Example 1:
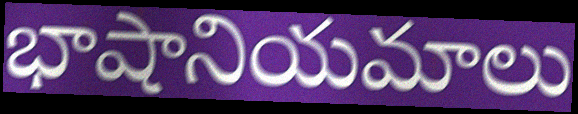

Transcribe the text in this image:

భాషానియమాలు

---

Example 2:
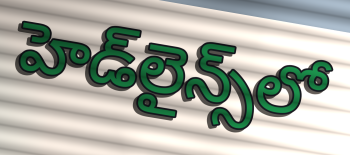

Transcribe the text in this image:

హెడ్‌లైన్స్‌లో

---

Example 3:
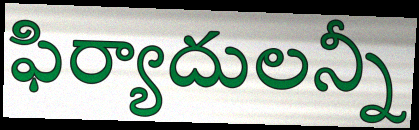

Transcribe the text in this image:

ఫిర్యాదులన్నీ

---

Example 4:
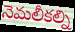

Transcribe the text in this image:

నెమలీకల్ని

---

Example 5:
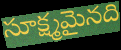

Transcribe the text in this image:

సూక్ష్మమైనది